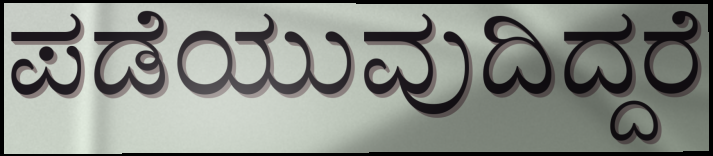
ಪಡೆಯುವುದಿದ್ದರೆ